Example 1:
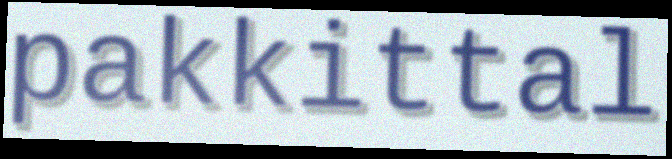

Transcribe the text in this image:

pakkittal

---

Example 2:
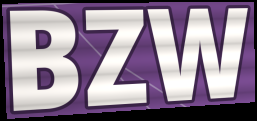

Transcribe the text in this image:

BZW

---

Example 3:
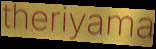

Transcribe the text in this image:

theriyama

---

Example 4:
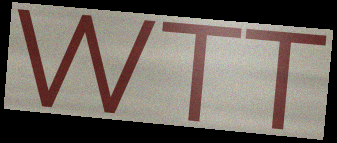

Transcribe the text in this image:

WTT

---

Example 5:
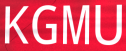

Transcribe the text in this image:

KGMU